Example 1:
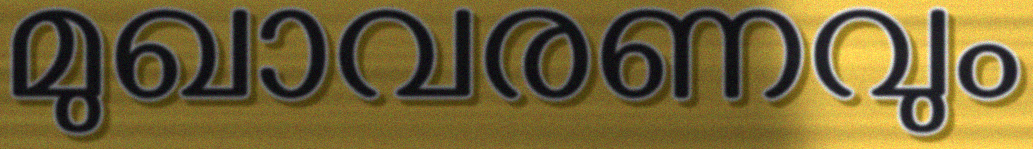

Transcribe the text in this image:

മുഖാവരണവും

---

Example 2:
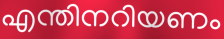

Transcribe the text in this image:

എന്തിനറിയണം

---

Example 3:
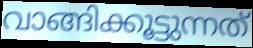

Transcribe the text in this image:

വാങ്ങിക്കൂട്ടുന്നത്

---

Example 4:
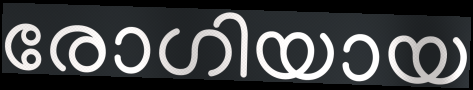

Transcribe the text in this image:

രോഗിയായ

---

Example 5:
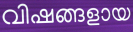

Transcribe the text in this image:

വിഷങ്ങളായ